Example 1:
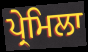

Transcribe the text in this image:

ਪ੍ਰੇਮਿਲਾ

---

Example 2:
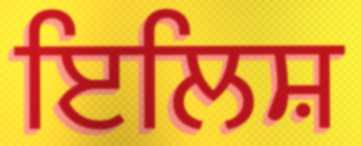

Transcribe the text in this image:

ਇਲਿਸ਼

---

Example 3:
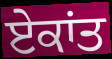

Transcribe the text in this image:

ਏਕਾਂਤ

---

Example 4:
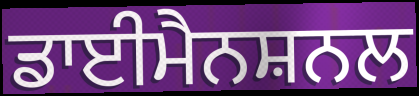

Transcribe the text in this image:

ਡਾਈਮੈਨਸ਼ਨਲ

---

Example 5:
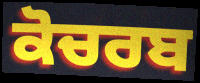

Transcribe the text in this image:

ਕੋਚਰਬ